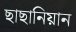
ছাছানিয়ান